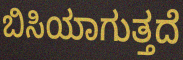
ಬಿಸಿಯಾಗುತ್ತದೆ